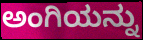
ಅಂಗಿಯನ್ನು